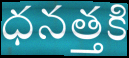
ధనత్తకి